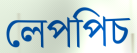
লেপপিচ